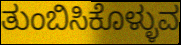
ತುಂಬಿಸಿಕೊಳ್ಳುವ